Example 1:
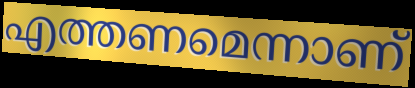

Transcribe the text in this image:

എത്തണമെന്നാണ്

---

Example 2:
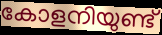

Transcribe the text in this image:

കോളനിയുണ്ട്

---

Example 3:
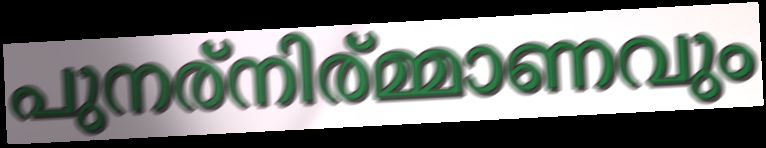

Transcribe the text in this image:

പുനര്നിര്മ്മാണവും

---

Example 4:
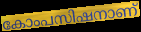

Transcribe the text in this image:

കോംപസിഷനാണ്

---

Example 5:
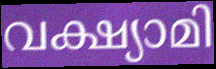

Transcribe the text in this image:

വക്ഷ്യാമി